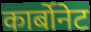
कार्बोनेट